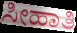
ಸೀಹಾತಿ